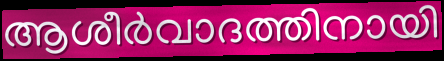
ആശീർവാദത്തിനായി